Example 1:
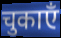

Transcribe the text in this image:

चुकाएँ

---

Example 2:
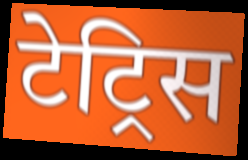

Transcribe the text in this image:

टेट्रिस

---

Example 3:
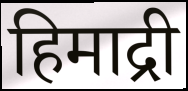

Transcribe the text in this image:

हिमाद्री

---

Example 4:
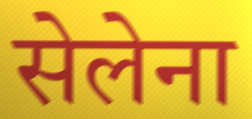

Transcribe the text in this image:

सेलेना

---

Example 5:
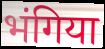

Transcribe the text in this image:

भंगिया